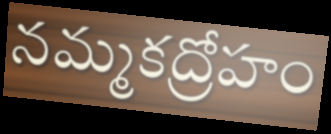
నమ్మకద్రోహం